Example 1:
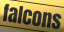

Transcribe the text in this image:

falcons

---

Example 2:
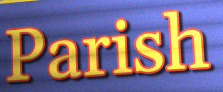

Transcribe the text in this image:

Parish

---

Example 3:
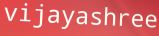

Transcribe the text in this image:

vijayashree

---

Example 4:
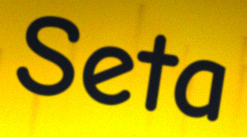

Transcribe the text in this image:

Seta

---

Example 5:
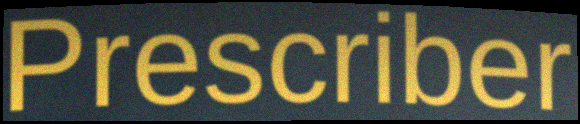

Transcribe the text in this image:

Prescriber